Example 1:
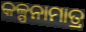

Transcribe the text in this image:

କଳ୍ପନାମାତ୍ର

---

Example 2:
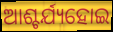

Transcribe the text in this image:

ଆଶ୍ଚର୍ଯ୍ୟହୋଇ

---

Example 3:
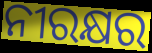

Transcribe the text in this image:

ନୀରକ୍ଷର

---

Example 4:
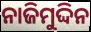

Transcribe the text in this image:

ନାଜିମୁଦ୍ଦିନ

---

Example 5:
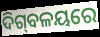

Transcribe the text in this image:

ଦିଗ୍‌ବଳୟରେ